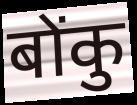
बोंकु